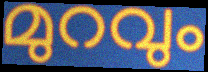
മുറവും